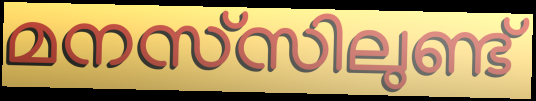
മനസ്‌സിലുണ്ട്